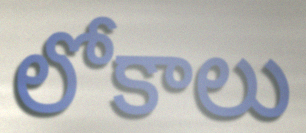
లోకాలు